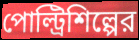
পোল্ট্রিশিল্পের